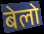
बेलो